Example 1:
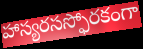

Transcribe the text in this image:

హాస్యరసస్ఫోరకంగా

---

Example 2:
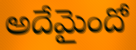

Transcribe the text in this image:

అదేమైందో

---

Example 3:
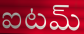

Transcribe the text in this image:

ఐటమ్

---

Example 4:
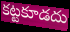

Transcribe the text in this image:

కట్టకూడదు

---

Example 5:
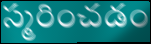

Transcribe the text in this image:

స్మరించడం